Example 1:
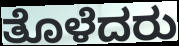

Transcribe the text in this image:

ತೊಳೆದರು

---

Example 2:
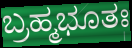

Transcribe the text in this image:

ಬ್ರಹ್ಮಭೂತಃ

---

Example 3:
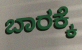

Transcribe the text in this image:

ಬಾರಕ್ಕೆ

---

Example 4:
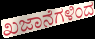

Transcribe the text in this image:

ಖಜಾನೆಗಳಿಂದ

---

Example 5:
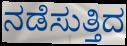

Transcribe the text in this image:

ನಡೆಸುತ್ತಿದ